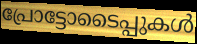
പ്രോട്ടോടൈപ്പുകൾ